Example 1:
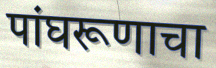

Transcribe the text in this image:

पांघरूणाचा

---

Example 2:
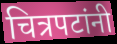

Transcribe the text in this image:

चित्रपटांनी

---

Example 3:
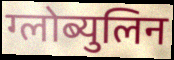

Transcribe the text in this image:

ग्लोब्युलिन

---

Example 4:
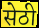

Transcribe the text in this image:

सेठी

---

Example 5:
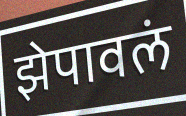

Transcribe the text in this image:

झेपावलं